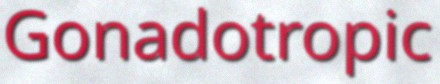
Gonadotropic